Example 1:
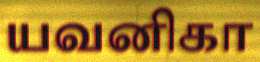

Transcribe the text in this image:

யவனிகா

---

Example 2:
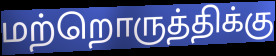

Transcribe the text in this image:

மற்றொருத்திக்கு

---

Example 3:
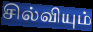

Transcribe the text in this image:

சில்வியும்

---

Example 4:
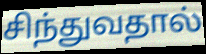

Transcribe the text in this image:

சிந்துவதால்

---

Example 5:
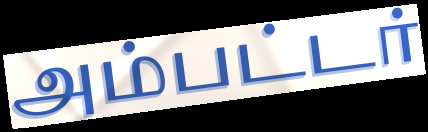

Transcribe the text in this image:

அம்பட்டர்